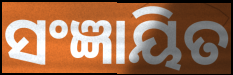
ସଂଜ୍ଞାୟିତ